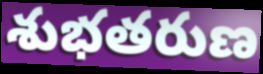
శుభతరుణ